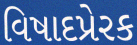
વિષાદપ્રેરક